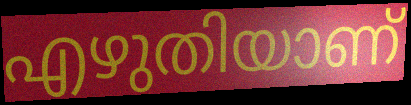
എഴുതിയാണ്